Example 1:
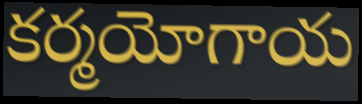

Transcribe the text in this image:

కర్మయోగాయ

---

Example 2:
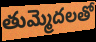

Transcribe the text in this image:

తుమ్మెదలతో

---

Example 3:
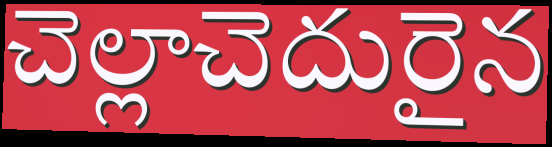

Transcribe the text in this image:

చెల్లాచెదురైన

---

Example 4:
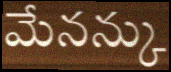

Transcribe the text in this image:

మేనన్కు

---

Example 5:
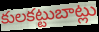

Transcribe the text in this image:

కులకట్టుబాట్లు